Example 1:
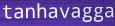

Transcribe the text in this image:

tanhavagga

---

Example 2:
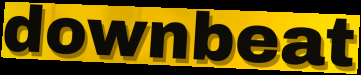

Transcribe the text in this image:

downbeat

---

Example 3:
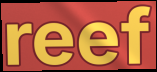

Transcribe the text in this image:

reef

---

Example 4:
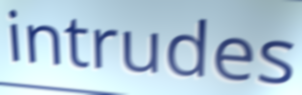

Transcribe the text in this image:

intrudes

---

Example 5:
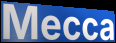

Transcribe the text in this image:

Mecca